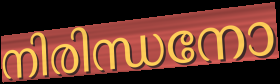
നിരിന്ധനോ